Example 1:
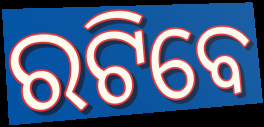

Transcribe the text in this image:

ରଟିବେ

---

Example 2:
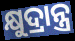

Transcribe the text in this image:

କ୍ଷୁଦ୍ରାନ୍ତ୍ର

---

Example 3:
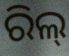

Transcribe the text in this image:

ରିଲ୍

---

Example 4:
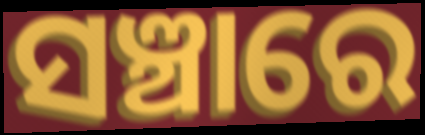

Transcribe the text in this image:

ସଞ୍ଚାରେ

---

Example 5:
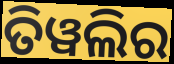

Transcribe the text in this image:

ତିୱଲିର